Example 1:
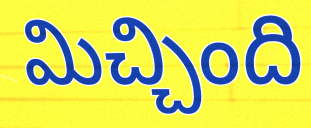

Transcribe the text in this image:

మిచ్చింది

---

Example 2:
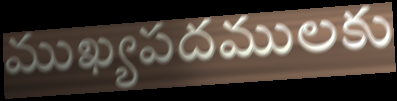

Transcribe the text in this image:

ముఖ్యపదములకు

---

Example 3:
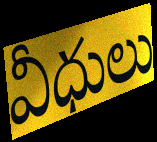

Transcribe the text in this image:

వీధులు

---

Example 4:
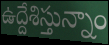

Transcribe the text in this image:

ఉద్దేశిస్తున్నాం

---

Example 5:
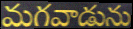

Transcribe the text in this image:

మగవాడును